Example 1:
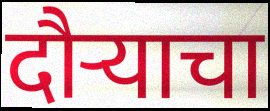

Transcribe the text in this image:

दौऱ्याचा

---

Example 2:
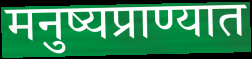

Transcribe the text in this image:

मनुष्यप्राण्यात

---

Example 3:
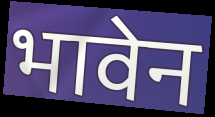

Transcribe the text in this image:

भावेन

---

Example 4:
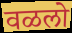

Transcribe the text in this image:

वळलो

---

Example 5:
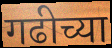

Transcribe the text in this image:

गढीच्या